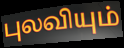
புலவியும்